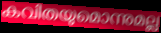
കവിതയുമൊന്നുമല്ല